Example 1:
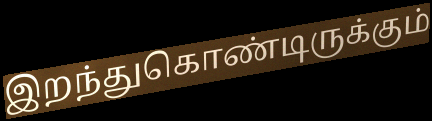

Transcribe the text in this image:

இறந்துகொண்டிருக்கும்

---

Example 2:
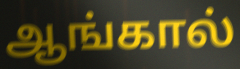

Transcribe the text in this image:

ஆங்கால்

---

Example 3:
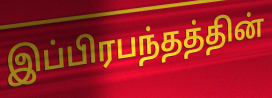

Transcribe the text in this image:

இப்பிரபந்தத்தின்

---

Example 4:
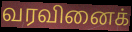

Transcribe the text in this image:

வரவினைக்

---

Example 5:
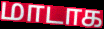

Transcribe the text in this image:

மாடாக